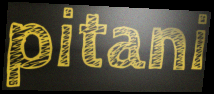
pitani